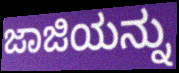
ಜಾಜಿಯನ್ನು